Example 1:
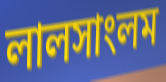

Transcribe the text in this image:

লালসাংলম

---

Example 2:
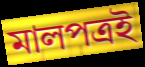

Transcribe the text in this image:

মালপত্রই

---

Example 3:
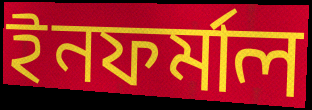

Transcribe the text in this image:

ইনফর্মাল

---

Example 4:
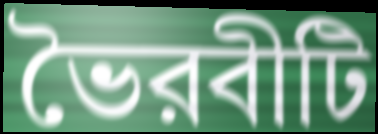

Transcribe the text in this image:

ভৈরবীটি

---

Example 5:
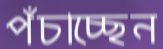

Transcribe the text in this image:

পঁচাচ্ছেন